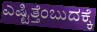
ಎಷ್ಟಿತ್ತೆಂಬುದಕ್ಕೆ